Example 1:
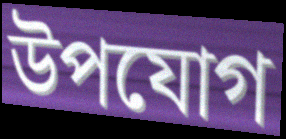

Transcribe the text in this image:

উপযোগ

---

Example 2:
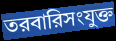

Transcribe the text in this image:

তরবারিসংযুক্ত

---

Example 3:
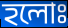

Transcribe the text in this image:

হলোঃ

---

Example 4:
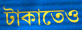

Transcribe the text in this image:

টাকাতেও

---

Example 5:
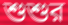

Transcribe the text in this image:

শুশুর